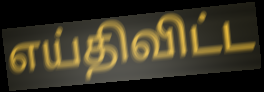
எய்திவிட்ட